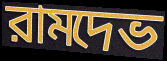
রামদেভ